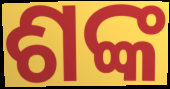
ଶଙ୍କ